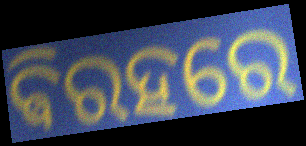
ଵିରହରେ